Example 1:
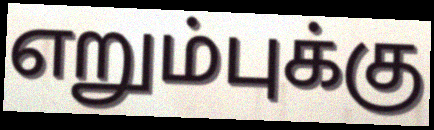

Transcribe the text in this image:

எறும்புக்கு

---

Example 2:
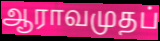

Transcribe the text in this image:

ஆராவமுதப்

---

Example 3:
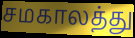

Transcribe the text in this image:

சமகாலத்து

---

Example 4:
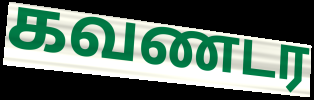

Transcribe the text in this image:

கவணடர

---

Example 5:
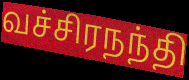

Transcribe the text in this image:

வச்சிரநந்தி